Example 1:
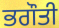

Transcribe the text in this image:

ਭਗੌਤੀ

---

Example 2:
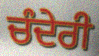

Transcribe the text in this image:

ਚੰਦੇਰੀ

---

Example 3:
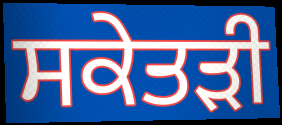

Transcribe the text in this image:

ਸਕੇਤੜੀ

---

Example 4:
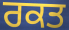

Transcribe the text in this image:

ਰਕਤ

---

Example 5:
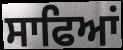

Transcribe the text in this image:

ਸਾਫਿਆਂ